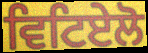
ਵਿਟਿਏਲੋ